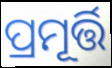
ପ୍ରମୂର୍ତ୍ତି